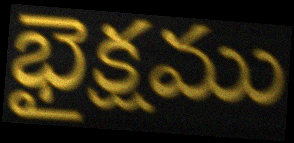
భైక్షము